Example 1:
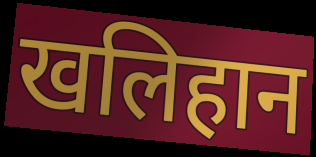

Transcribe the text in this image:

खलिहान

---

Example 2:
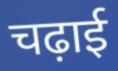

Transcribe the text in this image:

चढ़ाई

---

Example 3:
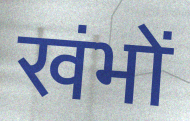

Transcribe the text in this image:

खंभों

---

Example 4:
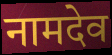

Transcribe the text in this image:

नामदेव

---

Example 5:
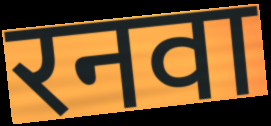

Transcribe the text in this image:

रनवा